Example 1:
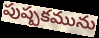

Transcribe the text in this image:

పుష్పకమును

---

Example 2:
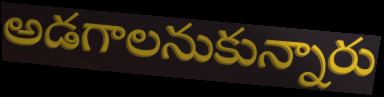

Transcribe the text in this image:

అడగాలనుకున్నారు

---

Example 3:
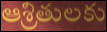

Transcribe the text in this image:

ఆశ్రితులకు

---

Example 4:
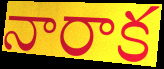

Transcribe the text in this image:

నారాక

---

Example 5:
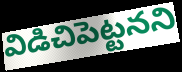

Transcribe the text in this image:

విడిచిపెట్టనని